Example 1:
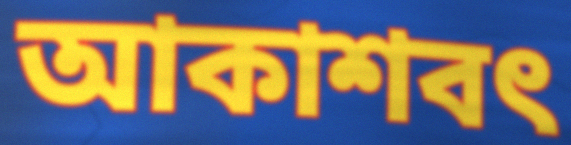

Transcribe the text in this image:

আকাশবৎ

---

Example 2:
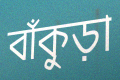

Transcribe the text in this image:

বাঁকুড়া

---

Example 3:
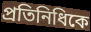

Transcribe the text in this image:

প্রতিনিধিকে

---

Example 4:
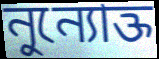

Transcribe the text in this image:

নুন্যোক্ত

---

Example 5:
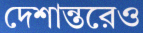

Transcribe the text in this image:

দেশান্তরেও